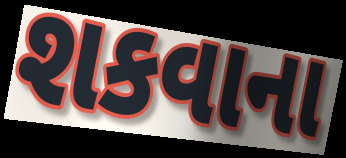
શકવાના